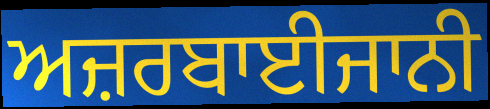
ਅਜ਼ਰਬਾਈਜਾਨੀ